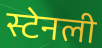
स्‍टेनली